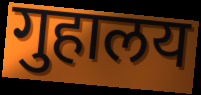
गुहालय